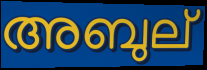
അബുല്